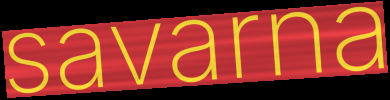
savarna